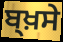
ਬ੍ਖ਼ਸੇ